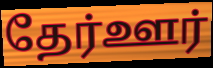
தேர்ஊர்